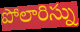
పోలారిస్ను